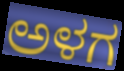
ಅಳಗ